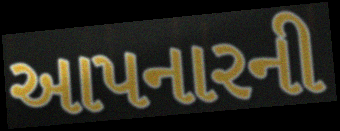
આપનારની